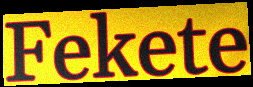
Fekete